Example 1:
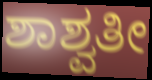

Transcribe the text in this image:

ಶಾಶ್ವತೀ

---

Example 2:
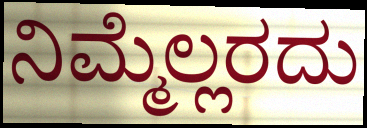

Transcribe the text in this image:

ನಿಮ್ಮೆಲ್ಲರದು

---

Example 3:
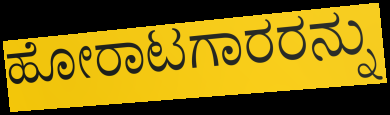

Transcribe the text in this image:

ಹೋರಾಟಗಾರರನ್ನು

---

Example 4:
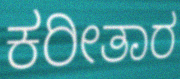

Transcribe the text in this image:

ಕರೀತಾರ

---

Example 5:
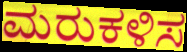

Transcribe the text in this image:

ಮರುಕಳಿಸ